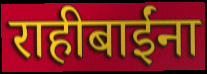
राहीबाईंना